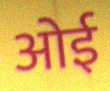
ओई